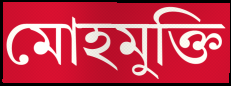
মোহমুক্তি